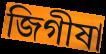
জিগীষা